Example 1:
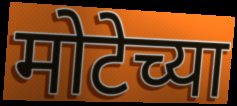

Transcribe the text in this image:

मोटेच्या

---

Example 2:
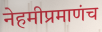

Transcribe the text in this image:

नेहमीप्रमाणंच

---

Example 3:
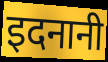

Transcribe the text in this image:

इदनानी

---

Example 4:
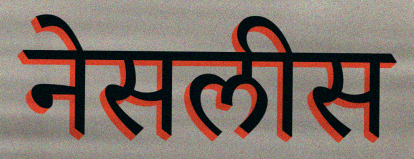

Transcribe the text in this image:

नेसलीस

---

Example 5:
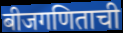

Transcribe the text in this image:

बीजगणिताची